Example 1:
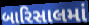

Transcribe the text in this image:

બારિસાલમાં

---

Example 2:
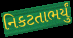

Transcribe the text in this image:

નિકટતાભર્યું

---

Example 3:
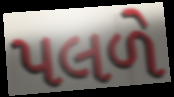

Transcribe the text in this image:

પલળે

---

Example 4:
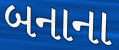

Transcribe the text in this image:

બનાના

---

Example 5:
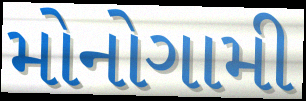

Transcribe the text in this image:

મોનોગામી